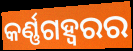
କର୍ଣ୍ଣଗହ୍ୱରର